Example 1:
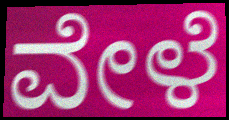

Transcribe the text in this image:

ವೇಳೆ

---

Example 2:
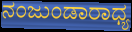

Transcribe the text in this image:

ನಂಜುಂಡಾರಾಧ್ಯ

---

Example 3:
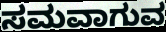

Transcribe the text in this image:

ಸಮವಾಗುವ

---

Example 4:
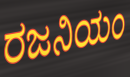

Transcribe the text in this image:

ರಜನಿಯಂ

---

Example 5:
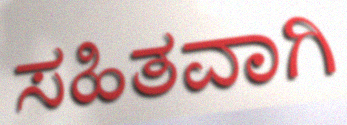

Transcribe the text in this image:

ಸಹಿತವಾಗಿ